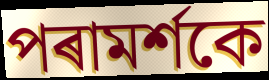
পৰামৰ্শকে